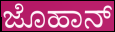
ಜೊಹಾನ್